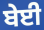
ਬੇਈ